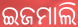
ଇଜମାଲି